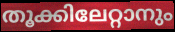
തൂക്കിലേറ്റാനും